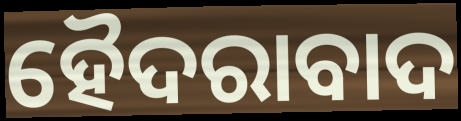
ହୈଦରାବାଦ